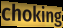
choking